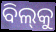
ବିଲ୍‌କୁ